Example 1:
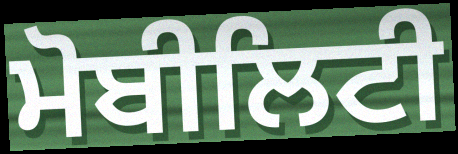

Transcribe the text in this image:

ਮੋਬੀਲਿਟੀ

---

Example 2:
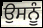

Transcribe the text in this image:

ਉਸਨੂੰ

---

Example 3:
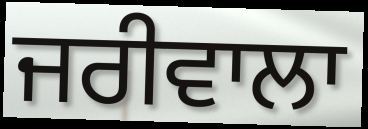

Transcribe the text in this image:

ਜਰੀਵਾਲਾ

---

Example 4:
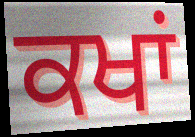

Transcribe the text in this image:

ਕਖਾਂ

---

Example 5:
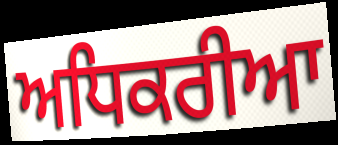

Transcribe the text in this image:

ਅਧਿਕਰੀਆ